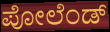
ಪೋಲೆಂಡ್